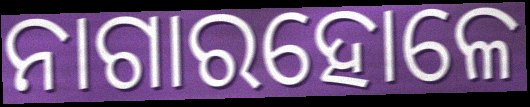
ନାଗାରହୋଳେ